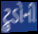
ટ્રુડોની